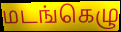
மடங்கெழு